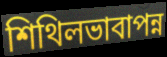
শিথিলভাবাপন্ন